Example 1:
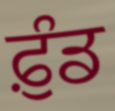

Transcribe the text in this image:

ਫ਼ੁੰਡ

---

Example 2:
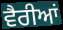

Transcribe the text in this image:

ਵੈਰੀਆਂ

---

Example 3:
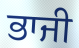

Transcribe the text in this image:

ਭਾਜੀ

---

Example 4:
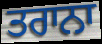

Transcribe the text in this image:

ਤਰਾਨਾ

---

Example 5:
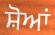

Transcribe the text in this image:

ਸ਼ੋਆਂ